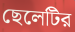
ছেলেটির